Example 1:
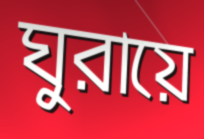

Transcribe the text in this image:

ঘুরায়ে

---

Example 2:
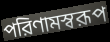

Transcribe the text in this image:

পরিণামস্বরূপ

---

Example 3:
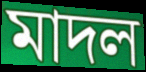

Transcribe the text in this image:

মাদল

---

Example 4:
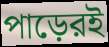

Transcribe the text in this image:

পাড়েরই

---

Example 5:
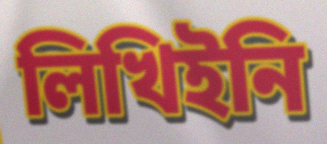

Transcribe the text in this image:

লিখিইনি